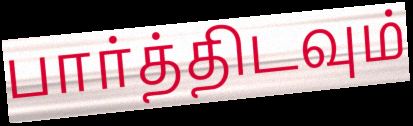
பார்த்திடவும்